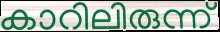
കാറിലിരുന്ന്